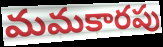
మమకారపు